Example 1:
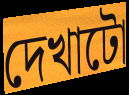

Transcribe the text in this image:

দেখাটো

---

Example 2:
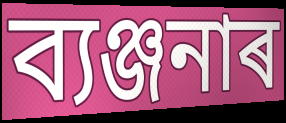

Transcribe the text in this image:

ব্যঞ্জনাৰ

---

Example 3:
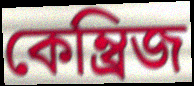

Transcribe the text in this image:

কেম্ব্ৰিজ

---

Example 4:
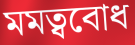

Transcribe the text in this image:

মমত্ববোধ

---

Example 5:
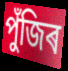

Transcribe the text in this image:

পুঁজিৰ